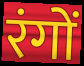
रंगों